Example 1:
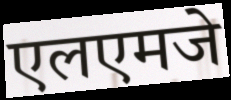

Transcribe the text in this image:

एलएमजे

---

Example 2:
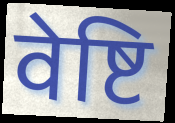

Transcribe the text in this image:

वेष्टि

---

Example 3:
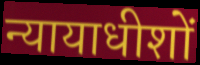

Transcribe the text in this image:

न्यायाधीशों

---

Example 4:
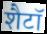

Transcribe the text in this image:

शैटॉ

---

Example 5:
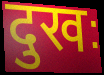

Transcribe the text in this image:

दुखः